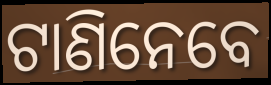
ଟାଣିନେବେ